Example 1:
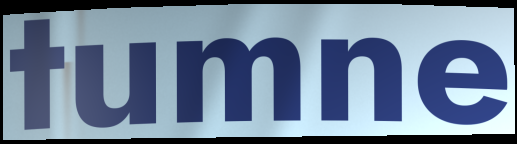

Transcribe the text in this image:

tumne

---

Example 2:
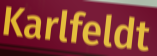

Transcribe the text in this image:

Karlfeldt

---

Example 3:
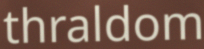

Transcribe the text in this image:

thraldom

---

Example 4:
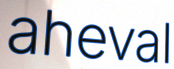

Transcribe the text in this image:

aheval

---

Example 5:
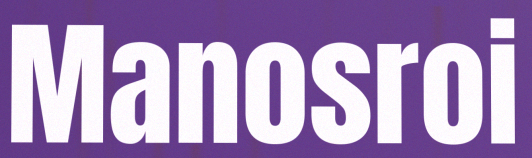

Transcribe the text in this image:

Manosroi